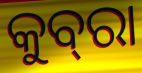
କୁବ୍‍ରା